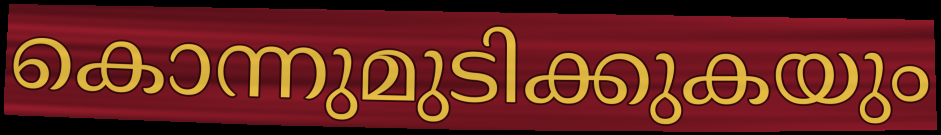
കൊന്നുമുടിക്കുകയും